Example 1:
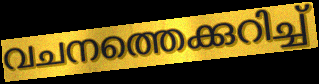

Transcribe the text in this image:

വചനത്തെക്കുറിച്ച്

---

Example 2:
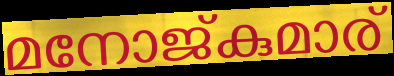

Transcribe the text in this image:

മനോജ്കുമാര്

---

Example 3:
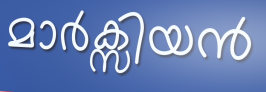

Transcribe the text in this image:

മാർക്സിയൻ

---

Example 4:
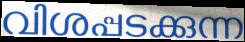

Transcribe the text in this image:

വിശപ്പടക്കുന്ന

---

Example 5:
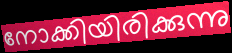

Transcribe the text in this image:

നോക്കിയിരിക്കുന്നു